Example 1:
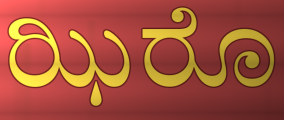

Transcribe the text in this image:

ಝಿರೊ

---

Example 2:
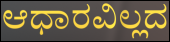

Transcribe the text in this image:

ಆಧಾರವಿಲ್ಲದ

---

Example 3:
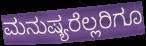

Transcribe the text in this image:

ಮನುಷ್ಯರೆಲ್ಲರಿಗೂ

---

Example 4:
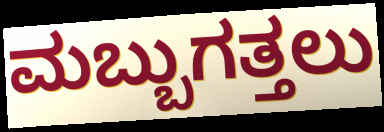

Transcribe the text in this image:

ಮಬ್ಬುಗತ್ತಲು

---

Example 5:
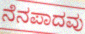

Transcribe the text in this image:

ನೆನಪಾದವು